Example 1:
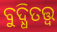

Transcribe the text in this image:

ବୁଦ୍ଧିତତ୍ତ୍ବ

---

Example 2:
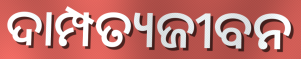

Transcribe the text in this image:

ଦାମ୍ପତ୍ୟଜୀବନ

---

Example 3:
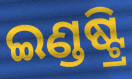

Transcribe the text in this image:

ଇଣ୍ଡଷ୍ଟ୍ରି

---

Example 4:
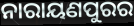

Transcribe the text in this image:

ନାରାୟଣପୁରର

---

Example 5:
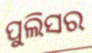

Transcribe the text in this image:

ପୁଲିସର